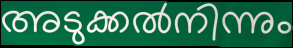
അടുക്കൽനിന്നും